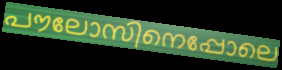
പൗലോസിനെപ്പോലെ